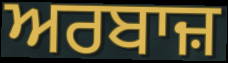
ਅਰਬਾਜ਼